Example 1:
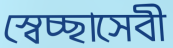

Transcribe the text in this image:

স্বেচ্ছাসেবী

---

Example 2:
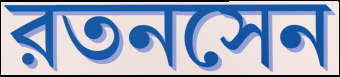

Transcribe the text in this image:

রতনসেন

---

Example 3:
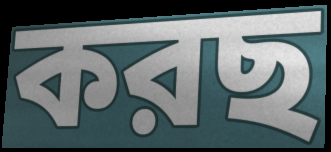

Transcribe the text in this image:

করছ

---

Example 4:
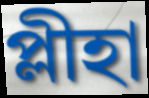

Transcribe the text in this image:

প্লীহা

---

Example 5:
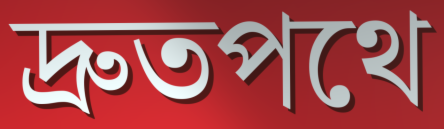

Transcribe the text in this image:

দ্রুতপথে